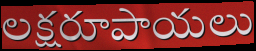
లక్షరూపాయలు